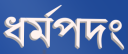
ধর্মপদং